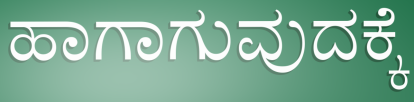
ಹಾಗಾಗುವುದಕ್ಕೆ